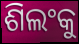
ଶିଲଂକୁ